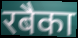
रबैका